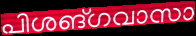
പിശങ്ഗവാസാ